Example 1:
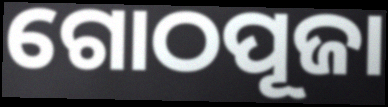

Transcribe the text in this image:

ଗୋଠପୂଜା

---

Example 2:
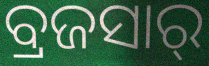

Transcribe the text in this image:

ବ୍ରଜସାର୍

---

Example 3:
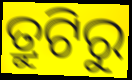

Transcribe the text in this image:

ତ୍ରୁଟିରୁ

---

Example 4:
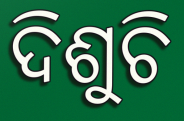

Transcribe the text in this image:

ଦିଶୁଚି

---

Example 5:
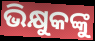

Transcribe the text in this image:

ଭିକ୍ଷୁକଙ୍କୁ